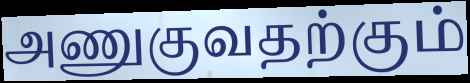
அணுகுவதற்கும்